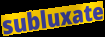
subluxate